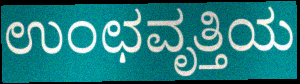
ಉಂಛವೃತ್ತಿಯ